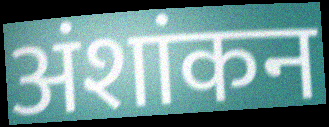
अंशांकन